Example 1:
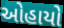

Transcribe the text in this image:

ઓહાયો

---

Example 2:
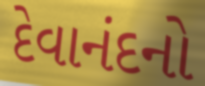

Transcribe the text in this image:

દેવાનંદનો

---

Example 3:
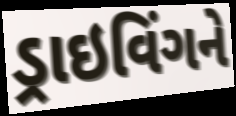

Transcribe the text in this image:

ડ્રાઇવિંગને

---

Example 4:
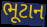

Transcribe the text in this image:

ભૂટાન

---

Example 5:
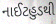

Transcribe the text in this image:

નાઈટહુડથી